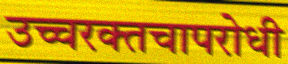
उच्चरक्तचापरोधी